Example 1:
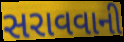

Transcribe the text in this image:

સરાવવાની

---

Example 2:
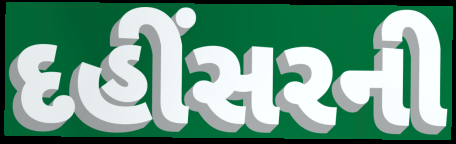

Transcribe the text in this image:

દહીંસરની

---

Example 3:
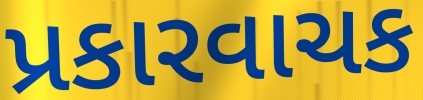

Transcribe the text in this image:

પ્રકારવાચક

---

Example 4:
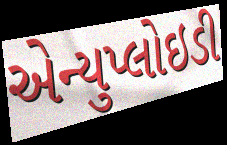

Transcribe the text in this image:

એન્યુપ્લોઇડી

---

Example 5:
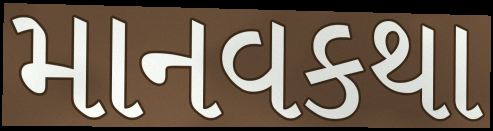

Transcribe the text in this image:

માનવકથા